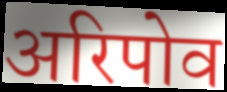
अरिपोव